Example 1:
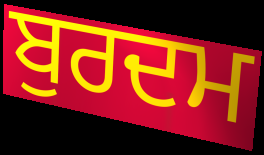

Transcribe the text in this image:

ਬੁਰਦਮ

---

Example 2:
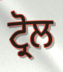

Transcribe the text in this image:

ਟ੍ਰੋਲ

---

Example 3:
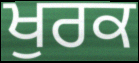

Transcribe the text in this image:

ਖੁਰਕ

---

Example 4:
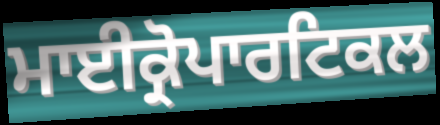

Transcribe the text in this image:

ਮਾਈਕ੍ਰੋਪਾਰਟਿਕਲ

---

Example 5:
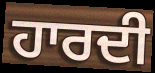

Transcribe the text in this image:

ਹਾਰਦੀ